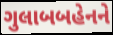
ગુલાબબહેનને